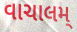
વાચાલમ્